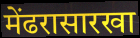
मेंढरासारखा